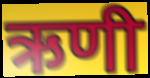
ऋणी